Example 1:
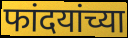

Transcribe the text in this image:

फांदयांच्या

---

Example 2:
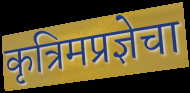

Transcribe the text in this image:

कृत्रिमप्रज्ञेचा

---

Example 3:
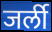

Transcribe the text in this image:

जर्ली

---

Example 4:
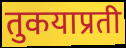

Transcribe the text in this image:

तुकयाप्रती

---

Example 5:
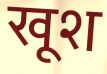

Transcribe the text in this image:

खूश